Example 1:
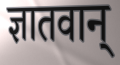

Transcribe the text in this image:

ज्ञातवान्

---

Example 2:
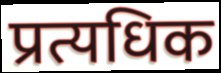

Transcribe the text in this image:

प्रत्यधिक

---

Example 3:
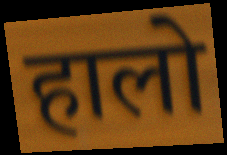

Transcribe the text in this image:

हालो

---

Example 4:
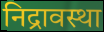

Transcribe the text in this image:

निद्रावस्था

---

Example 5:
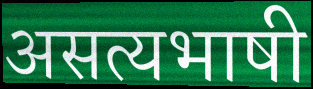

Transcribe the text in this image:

असत्यभाषी